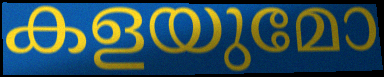
കളയുമോ